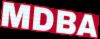
MDBA